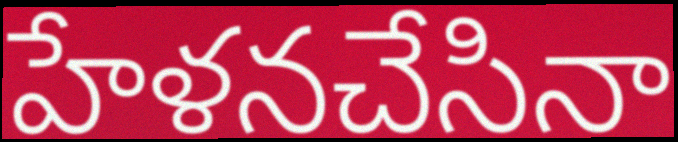
హేళనచేసినా